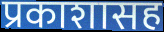
प्रकाशासह